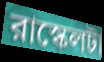
রাস্কেলটা